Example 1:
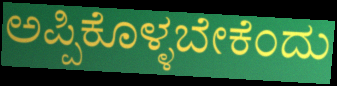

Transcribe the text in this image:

ಅಪ್ಪಿಕೊಳ್ಳಬೇಕೆಂದು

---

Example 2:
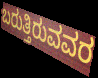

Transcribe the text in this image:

ಬರುತ್ತಿರುವವರ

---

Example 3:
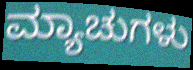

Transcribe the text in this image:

ಮ್ಯಾಚುಗಳು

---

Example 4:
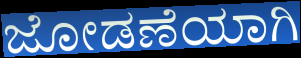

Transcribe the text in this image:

ಜೋಡಣೆಯಾಗಿ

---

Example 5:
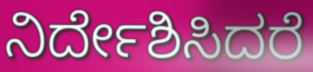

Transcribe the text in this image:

ನಿರ್ದೇಶಿಸಿದರೆ